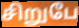
சிறுபே